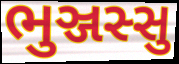
ભુઞ્જસ્સુ